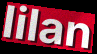
lilan